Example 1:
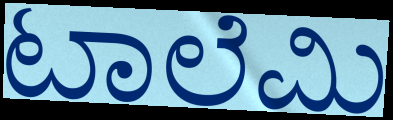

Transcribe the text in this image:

ಟಾಲೆಮಿ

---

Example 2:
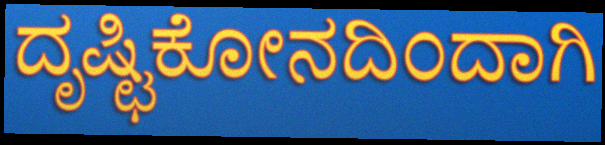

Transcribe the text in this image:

ದೃಷ್ಟಿಕೋನದಿಂದಾಗಿ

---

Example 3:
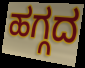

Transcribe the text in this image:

ಹಗ್ಗದ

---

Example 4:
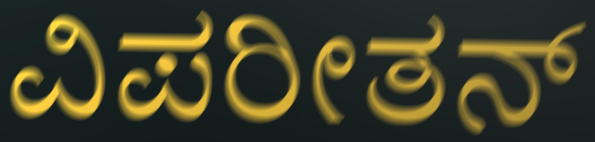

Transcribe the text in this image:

ವಿಪರೀತನ್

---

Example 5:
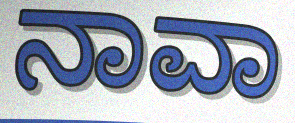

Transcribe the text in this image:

ನಾವಾ